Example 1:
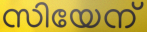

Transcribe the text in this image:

സിയേന്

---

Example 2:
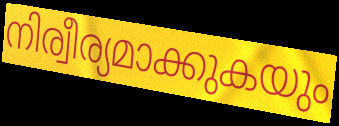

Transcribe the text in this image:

നിര്വീര്യമാക്കുകയും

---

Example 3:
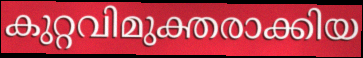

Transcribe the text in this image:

കുറ്റവിമുക്തരാക്കിയ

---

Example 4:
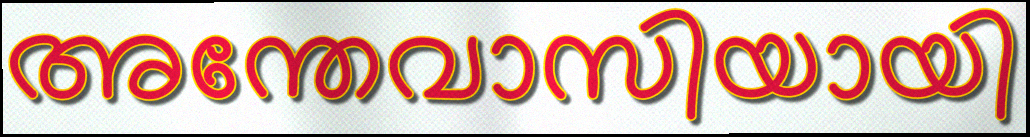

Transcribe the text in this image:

അന്തേവാസിയായി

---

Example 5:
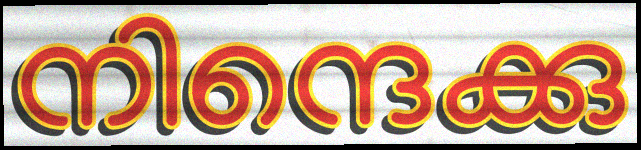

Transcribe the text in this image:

നിന്ദെക്കു